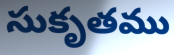
సుకృతము